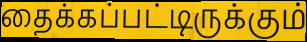
தைக்கப்பட்டிருக்கும்